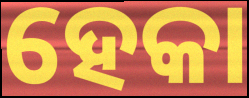
ହେକା